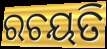
ରଚୟତି